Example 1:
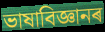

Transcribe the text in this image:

ভাষাবিজ্ঞানৰ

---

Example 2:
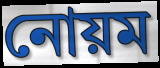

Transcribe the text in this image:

নোয়ম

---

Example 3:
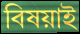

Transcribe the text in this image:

বিষয়াই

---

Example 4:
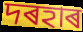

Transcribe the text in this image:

দৰহাৰ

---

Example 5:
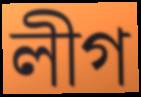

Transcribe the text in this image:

লীগ